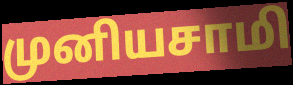
முனியசாமி